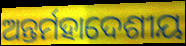
ଅନ୍ତର୍ମହାଦେଶୀୟ